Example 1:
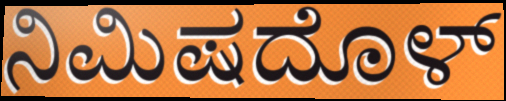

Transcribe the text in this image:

ನಿಮಿಷದೊಳ್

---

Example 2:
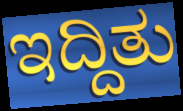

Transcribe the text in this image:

ಇದ್ದಿತು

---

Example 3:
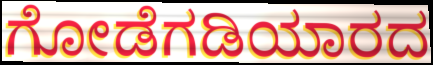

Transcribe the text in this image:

ಗೋಡೆಗಡಿಯಾರದ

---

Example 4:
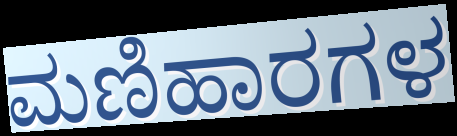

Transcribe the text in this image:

ಮಣಿಹಾರಗಳ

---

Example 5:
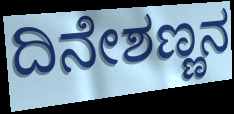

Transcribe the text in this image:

ದಿನೇಶಣ್ಣನ